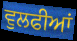
ਵੁਲਫੀਆਂ